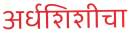
अर्धशिशीचा